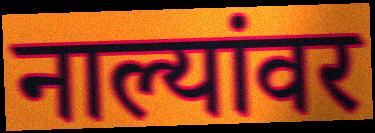
नाल्यांवर